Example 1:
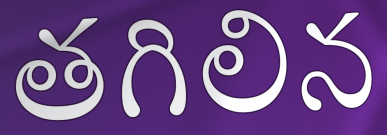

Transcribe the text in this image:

తగిలిన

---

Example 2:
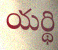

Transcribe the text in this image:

యర్థి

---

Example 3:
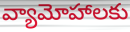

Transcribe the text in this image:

వ్యామోహాలకు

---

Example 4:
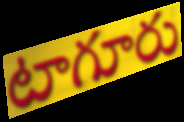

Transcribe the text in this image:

టాగూరు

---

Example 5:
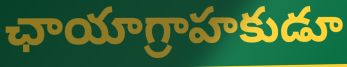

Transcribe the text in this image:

ఛాయాగ్రాహకుడూ